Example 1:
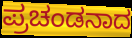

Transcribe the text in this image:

ಪ್ರಚಂಡನಾದ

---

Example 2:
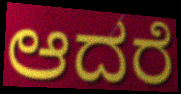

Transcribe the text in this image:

ಆದರೆ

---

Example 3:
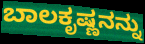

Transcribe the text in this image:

ಬಾಲಕೃಷ್ಣನನ್ನು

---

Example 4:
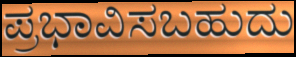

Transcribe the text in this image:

ಪ್ರಭಾವಿಸಬಹುದು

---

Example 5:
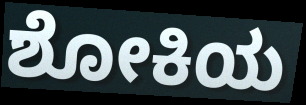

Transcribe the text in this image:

ಶೋಕಿಯ